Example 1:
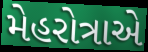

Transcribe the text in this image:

મેહરોત્રાએ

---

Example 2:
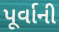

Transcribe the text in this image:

પૂર્વાની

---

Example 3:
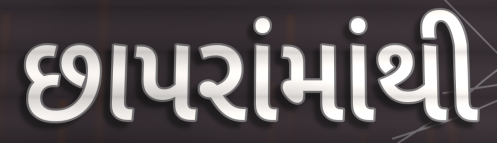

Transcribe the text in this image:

છાપરાંમાંથી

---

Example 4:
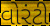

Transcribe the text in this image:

વોરંટી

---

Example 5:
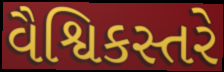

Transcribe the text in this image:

વૈશ્વિકસ્તરે